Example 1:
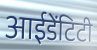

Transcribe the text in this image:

आईडेंटिटी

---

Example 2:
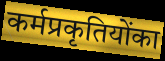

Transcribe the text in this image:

कर्मप्रकृतियोंका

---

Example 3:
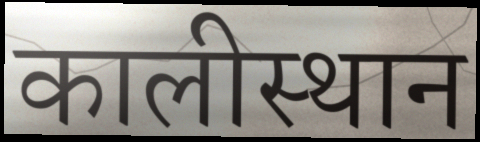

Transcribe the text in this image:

कालीस्थान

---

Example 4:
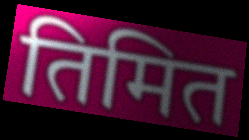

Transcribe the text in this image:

तिमित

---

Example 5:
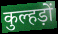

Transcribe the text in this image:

कुल्हड़ों